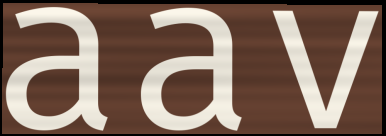
aav